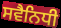
ਸਵੈਨਿਧੀ